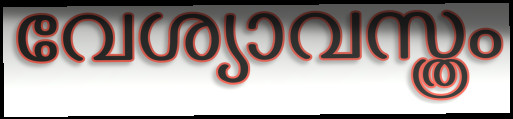
വേശ്യാവസ്ത്രം